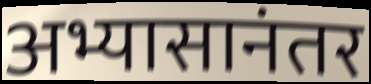
अभ्यासानंतर